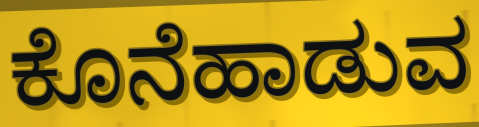
ಕೊನೆಹಾಡುವ